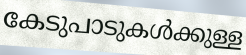
കേടുപാടുകൾക്കുള്ള